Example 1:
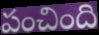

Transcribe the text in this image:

పంచింది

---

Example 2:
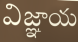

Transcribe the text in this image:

విజ్ఞాయ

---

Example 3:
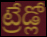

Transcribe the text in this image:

ట్రేడ్లో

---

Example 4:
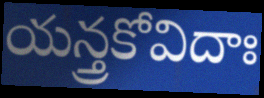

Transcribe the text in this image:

యన్త్రకోవిదాః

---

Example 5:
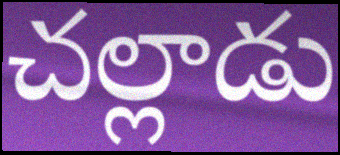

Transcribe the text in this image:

చల్లాడు